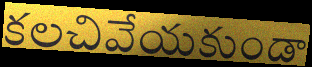
కలచివేయకుండా